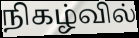
நிகழ்வில்